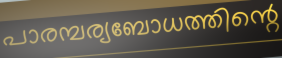
പാരമ്പര്യബോധത്തിന്റെ